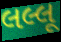
લલ્લૂ